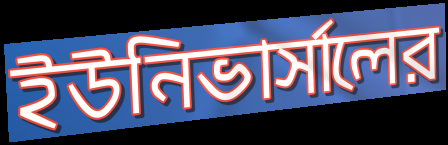
ইউনিভার্সালের